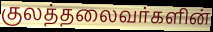
குலத்தலைவர்களின்